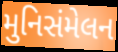
મુનિસંમેલન